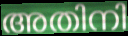
അതിനി